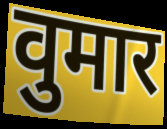
वुमार